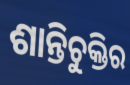
ଶାନ୍ତିଚୁକ୍ତିର